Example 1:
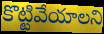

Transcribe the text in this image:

కొట్టివేయాలని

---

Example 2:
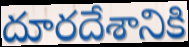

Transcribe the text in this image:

దూరదేశానికి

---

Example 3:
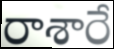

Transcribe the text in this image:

రాశారే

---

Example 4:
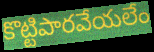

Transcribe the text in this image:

కొట్టిపారవేయలేం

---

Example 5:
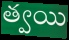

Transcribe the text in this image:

త్వయి